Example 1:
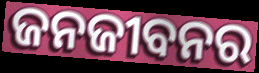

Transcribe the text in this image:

ଜନଜୀବନର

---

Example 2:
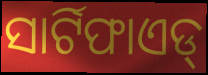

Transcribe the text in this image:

ସାର୍ଟିଫାଏଡ୍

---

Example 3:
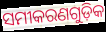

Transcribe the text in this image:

ସମୀକରଣଗୁଡ଼ିକ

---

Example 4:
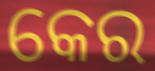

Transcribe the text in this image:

କେର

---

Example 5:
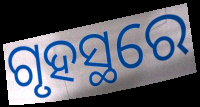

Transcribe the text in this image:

ଗୃହସ୍ଥରେ